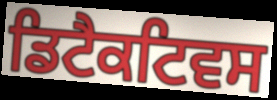
ਡਿਟੈਕਟਿਵਸ